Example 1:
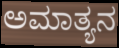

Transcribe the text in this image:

ಅಮಾತ್ಯನ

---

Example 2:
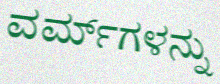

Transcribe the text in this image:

ವರ್ಮ್‌ಗಳನ್ನು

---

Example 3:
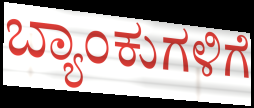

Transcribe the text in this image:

ಬ್ಯಾಂಕುಗಳಿಗೆ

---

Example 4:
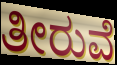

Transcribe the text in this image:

ತೀರುವೆ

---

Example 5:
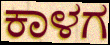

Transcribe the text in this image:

ಕಾಳಗ